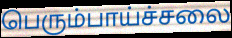
பெரும்பாய்ச்சலை